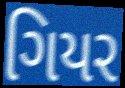
ગિયર